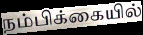
நம்பிக்கையில்